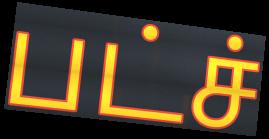
பட்ச்